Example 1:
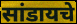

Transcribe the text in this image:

सांडायचे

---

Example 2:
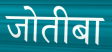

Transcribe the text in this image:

जोतीबा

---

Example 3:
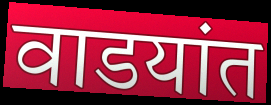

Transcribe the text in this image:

वाडयांत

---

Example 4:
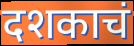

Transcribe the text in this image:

दशकाचं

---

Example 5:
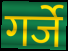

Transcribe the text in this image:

गर्जे